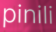
pinili